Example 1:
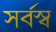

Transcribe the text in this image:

সর্বস্ব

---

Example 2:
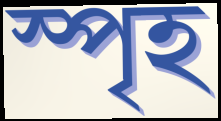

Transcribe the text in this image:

স্পৃহ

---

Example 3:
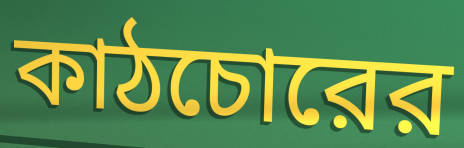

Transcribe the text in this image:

কাঠচোরের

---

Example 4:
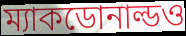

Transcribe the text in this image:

ম্যাকডোনাল্ডও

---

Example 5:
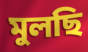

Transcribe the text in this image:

মুলছি